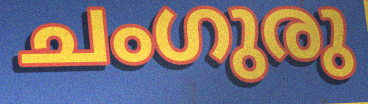
ചംഗുരു